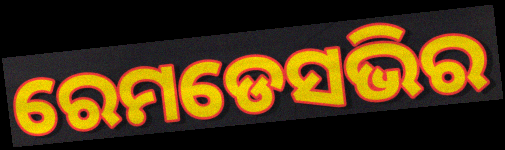
ରେମଡେସଭିର